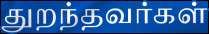
துறந்தவர்கள்